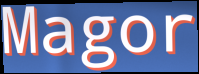
Magor